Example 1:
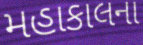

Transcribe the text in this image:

મહાકાલના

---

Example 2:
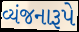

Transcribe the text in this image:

વ્યંજનારૂપે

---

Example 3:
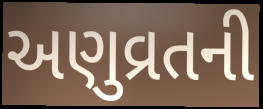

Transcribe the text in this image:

અણુવ્રતની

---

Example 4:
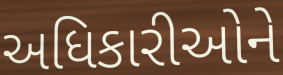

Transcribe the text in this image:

અધિકારીઓને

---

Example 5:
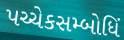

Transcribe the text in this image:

પચ્ચેકસમ્બોધિં